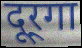
दूर्गा